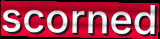
scorned